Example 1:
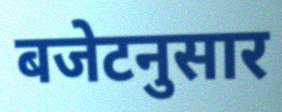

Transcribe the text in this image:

बजेटनुसार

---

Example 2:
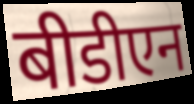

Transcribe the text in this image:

बीडीएन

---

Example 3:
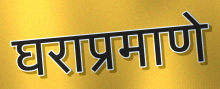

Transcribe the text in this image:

घराप्रमाणे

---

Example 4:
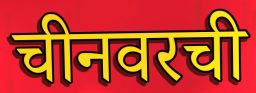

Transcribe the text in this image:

चीनवरची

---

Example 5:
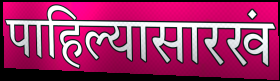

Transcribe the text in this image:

पाहिल्यासारखं